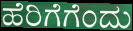
ಹೆರಿಗೆಗೆಂದು